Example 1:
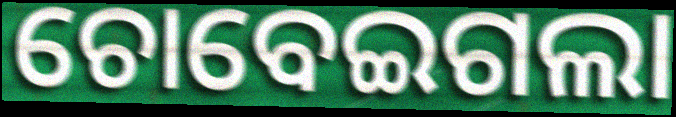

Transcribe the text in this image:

ଚୋବେଇଗଲା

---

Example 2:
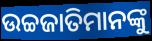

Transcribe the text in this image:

ଉଚ୍ଚଜାତିମାନଙ୍କୁ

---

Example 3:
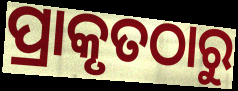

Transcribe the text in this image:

ପ୍ରାକୃତଠାରୁ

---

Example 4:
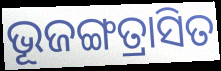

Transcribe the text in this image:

ଭୂଜଙ୍ଗତ୍ରାସିତ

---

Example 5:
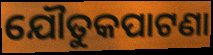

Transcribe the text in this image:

ଯୌତୁକପାଟଣା